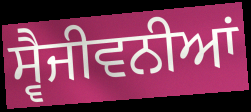
ਸ੍ਵੈਜੀਵਨੀਆਂ